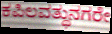
ಕಪಿಲವತ್ಥುನಗರೇ